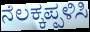
ನೆಲಕ್ಕಪ್ಪಳಿಸಿ